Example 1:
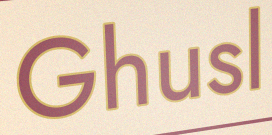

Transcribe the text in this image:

Ghusl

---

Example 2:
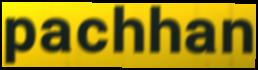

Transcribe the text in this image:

pachhan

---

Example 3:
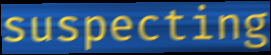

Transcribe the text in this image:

suspecting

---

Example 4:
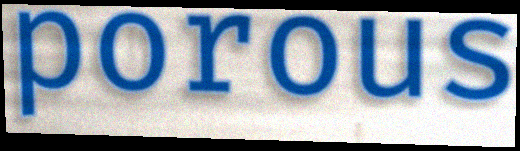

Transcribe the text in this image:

porous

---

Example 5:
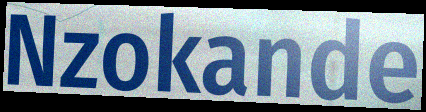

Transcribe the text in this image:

Nzokande